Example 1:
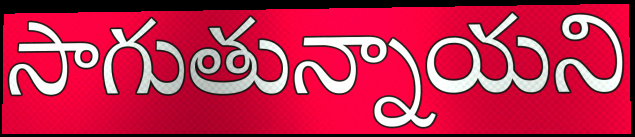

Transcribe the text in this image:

సాగుతున్నాయని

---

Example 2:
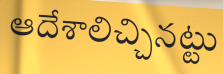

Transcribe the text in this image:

ఆదేశాలిచ్చినట్టు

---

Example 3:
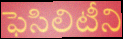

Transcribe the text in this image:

ఫెసిలిటీని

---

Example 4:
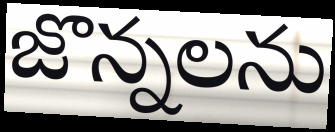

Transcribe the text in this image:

జొన్నలను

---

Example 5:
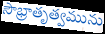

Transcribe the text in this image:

సౌభ్రాతృత్వమును